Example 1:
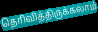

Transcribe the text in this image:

தெரிவித்திருக்கலாம்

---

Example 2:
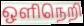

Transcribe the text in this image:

ஒளிநெறி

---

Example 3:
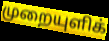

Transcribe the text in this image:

முறையுளிக்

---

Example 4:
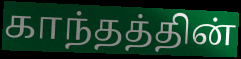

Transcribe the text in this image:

காந்தத்தின்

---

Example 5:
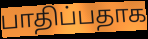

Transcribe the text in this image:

பாதிப்பதாக